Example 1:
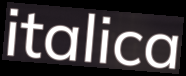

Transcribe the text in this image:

italica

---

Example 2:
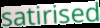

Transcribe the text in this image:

satirised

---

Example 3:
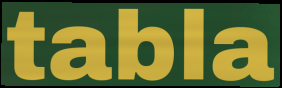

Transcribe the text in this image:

tabla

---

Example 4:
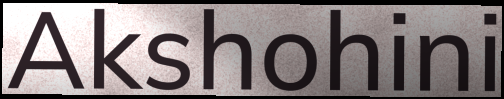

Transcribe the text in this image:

Akshohini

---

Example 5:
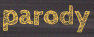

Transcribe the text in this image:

parody